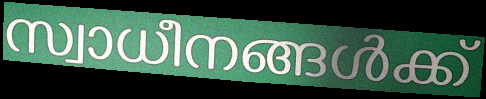
സ്വാധീനങ്ങൾക്ക്